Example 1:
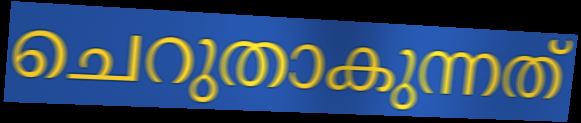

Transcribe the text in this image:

ചെറുതാകുന്നത്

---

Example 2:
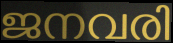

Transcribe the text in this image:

ജനവരി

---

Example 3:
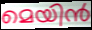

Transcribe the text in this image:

മെയിൻ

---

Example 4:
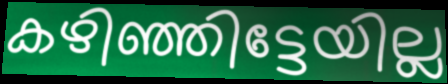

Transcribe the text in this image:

കഴിഞ്ഞിട്ടേയില്ല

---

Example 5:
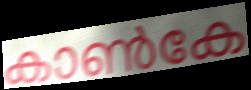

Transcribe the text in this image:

കാൺകേ